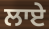
ਲਾਏ